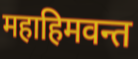
महाहिमवन्त